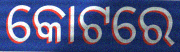
କୋଟରେ